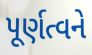
પૂર્ણત્વને